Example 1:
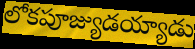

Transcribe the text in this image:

లోకపూజ్యుడయ్యాడు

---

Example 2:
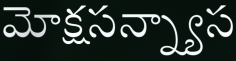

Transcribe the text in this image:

మోక్షసన్న్యాస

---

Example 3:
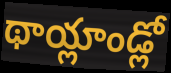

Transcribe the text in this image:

థాయ్లాండ్లో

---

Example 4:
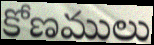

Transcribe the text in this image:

కోణములు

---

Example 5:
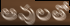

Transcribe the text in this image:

ఆవులతో